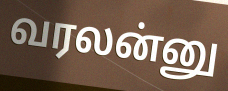
வரலன்னு